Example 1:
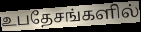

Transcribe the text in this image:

உபதேசங்களில்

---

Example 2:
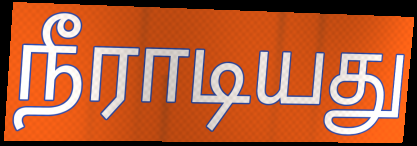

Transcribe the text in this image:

நீராடியது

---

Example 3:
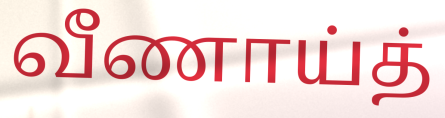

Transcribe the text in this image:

வீணாய்த்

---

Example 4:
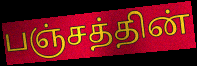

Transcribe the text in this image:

பஞ்சத்தின்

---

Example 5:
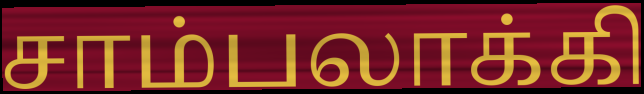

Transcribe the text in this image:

சாம்பலாக்கி